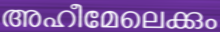
അഹീമേലെക്കും